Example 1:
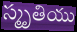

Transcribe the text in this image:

స్మృతియు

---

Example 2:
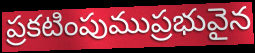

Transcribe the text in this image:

ప్రకటింపుముప్రభువైన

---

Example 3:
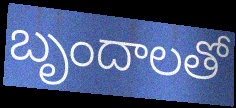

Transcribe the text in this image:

బృందాలతో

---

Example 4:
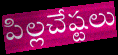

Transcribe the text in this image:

పిల్లచేష్టలు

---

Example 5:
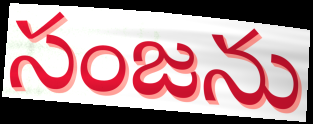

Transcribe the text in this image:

సంజను